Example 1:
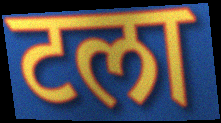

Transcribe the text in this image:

टला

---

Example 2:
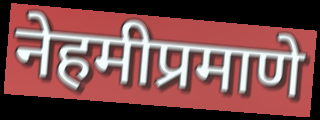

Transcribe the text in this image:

नेहमीप्रमाणे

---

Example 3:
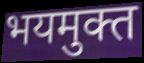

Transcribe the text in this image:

भयमुक्त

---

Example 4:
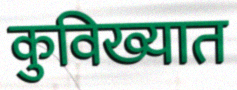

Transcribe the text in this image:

कुविख्यात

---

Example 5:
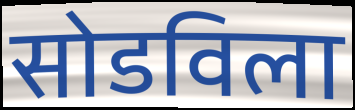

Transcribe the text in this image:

सोडविला